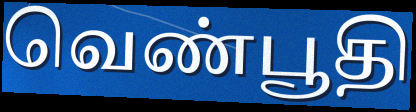
வெண்பூதி